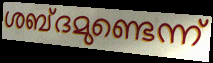
ശബ്ദമുണ്ടെന്ന്